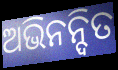
ଅଭିନନ୍ଦିତ